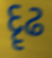
દૄઢ